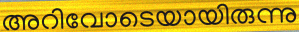
അറിവോടെയായിരുന്നു